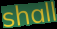
shall